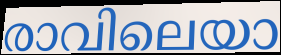
രാവിലെയാ